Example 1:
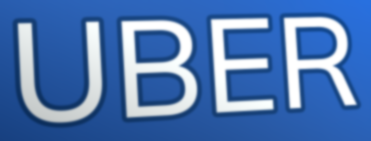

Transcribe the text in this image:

UBER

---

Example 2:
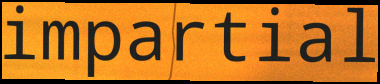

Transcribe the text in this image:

impartial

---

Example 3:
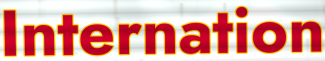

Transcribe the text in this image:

Internation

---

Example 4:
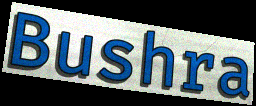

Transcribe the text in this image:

Bushra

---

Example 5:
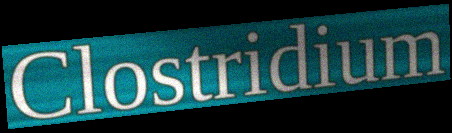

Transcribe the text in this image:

Clostridium